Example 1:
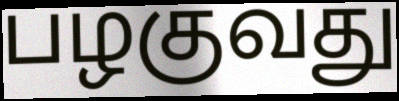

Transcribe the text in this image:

பழகுவது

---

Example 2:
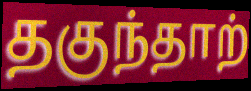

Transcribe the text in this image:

தகுந்தாற்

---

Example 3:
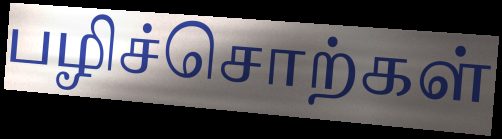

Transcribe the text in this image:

பழிச்சொற்கள்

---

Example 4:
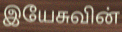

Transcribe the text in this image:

இயேசுவின்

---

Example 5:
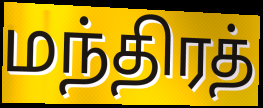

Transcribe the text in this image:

மந்திரத்